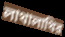
লাথালাথির